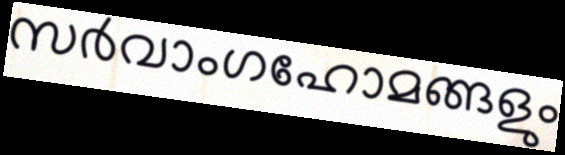
സർവാംഗഹോമങ്ങളും